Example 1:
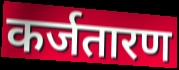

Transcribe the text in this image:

कर्जतारण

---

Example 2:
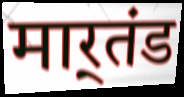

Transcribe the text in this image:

मार्तंड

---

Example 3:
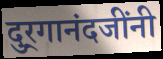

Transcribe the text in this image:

दुर्गानंदजींनी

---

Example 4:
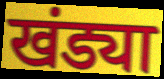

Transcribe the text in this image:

खंड्या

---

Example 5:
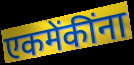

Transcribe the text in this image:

एकमेंकींना